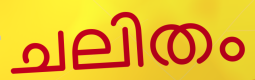
ചലിതം